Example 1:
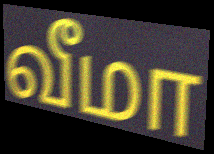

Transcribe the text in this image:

வீமா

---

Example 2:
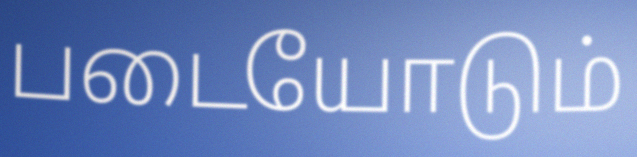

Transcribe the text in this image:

படையோடும்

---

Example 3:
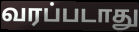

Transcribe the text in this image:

வரப்படாது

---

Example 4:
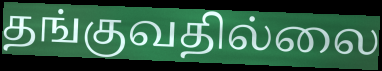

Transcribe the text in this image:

தங்குவதில்லை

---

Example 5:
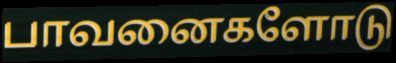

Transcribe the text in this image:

பாவனைகளோடு